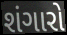
શંગારો